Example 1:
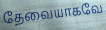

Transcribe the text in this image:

தேவையாகவே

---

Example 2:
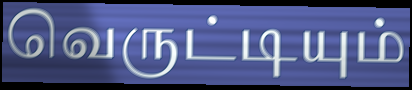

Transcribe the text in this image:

வெருட்டியும்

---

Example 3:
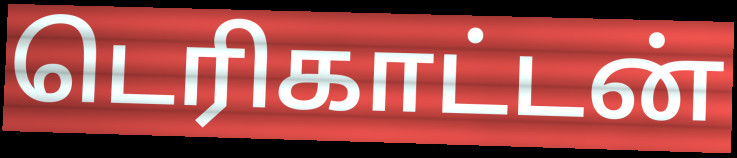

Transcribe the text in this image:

டெரிகாட்டன்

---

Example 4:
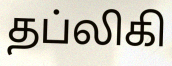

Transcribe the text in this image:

தப்லிகி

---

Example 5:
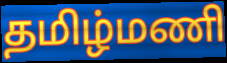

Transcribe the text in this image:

தமிழ்மணி